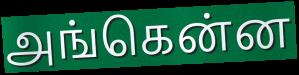
அங்கென்ன